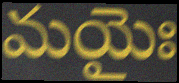
మయైః